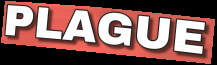
PLAGUE